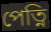
পেত্নি